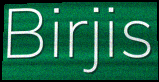
Birjis